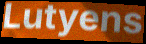
Lutyens